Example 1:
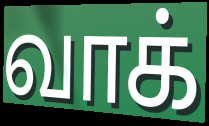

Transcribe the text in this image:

வாக்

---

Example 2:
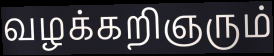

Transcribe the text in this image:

வழக்கறிஞரும்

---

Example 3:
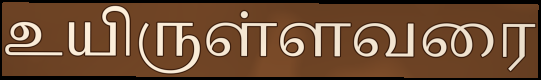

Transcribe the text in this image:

உயிருள்ளவரை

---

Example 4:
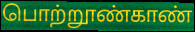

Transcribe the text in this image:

பொற்றூண்காண்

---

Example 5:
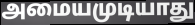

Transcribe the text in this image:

அமையமுடியாது